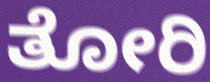
ತೋರಿ